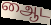
ஆைட